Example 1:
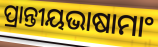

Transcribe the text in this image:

ପ୍ରାନ୍ତୀୟଭାଷାମାଂ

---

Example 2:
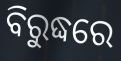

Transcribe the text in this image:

ବିରୁଦ୍ଧରେ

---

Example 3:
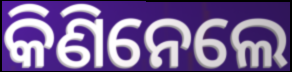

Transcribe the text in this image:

କିଣିନେଲେ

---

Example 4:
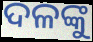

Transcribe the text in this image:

ଦଳଙ୍କୁ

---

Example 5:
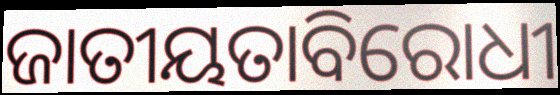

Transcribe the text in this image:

ଜାତୀୟତାବିରୋଧୀ